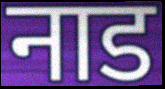
नाड